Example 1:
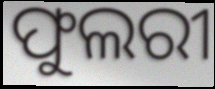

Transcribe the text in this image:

ଫୁଲରୀ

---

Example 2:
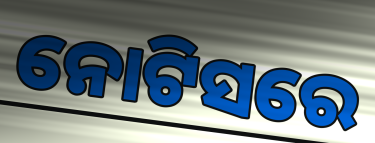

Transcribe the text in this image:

ନୋଟିସରେ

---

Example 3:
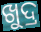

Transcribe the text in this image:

ଖୁଦ୍ର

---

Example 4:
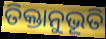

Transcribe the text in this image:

ତିକ୍ତାନୁଭୂତି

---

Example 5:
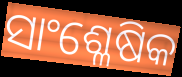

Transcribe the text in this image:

ସାଂଶ୍ଳେଷିକ